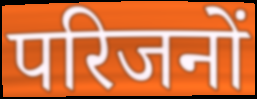
परिजनों